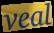
veal